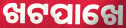
ଖଟପାଖେ